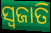
ସ୍ବଜାତି